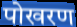
पोखरण